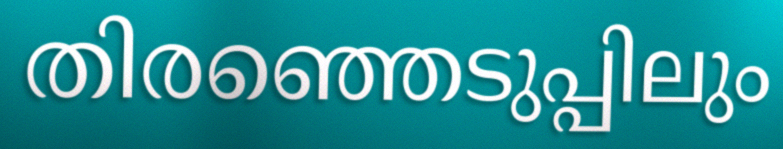
തിരഞ്ഞെടുപ്പിലും